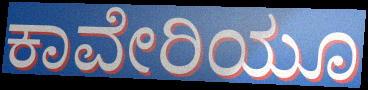
ಕಾವೇರಿಯೂ